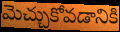
మెచ్చుకోవడానికి